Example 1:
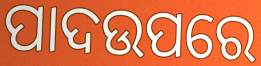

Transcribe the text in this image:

ପାଦଉପରେ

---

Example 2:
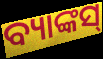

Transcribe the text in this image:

ବ୍ୟାଙ୍କସ୍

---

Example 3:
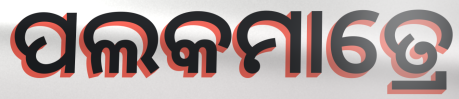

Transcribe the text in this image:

ପଲକମାତ୍ରେ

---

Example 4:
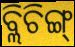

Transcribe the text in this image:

ବ୍ଲିଚିଙ୍ଗ୍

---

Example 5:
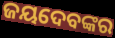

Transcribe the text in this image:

ଜୟଦେବଙ୍କର